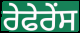
ਰੇਫੇਰੇਂਸ